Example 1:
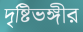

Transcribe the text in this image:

দৃষ্টিভঙ্গীর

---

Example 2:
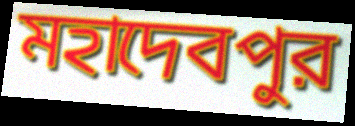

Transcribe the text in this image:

মহাদেবপুর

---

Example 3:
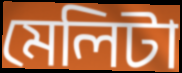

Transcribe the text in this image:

মেলিটা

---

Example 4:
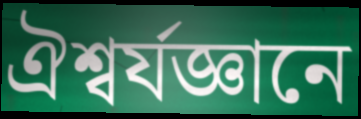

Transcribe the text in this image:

ঐশ্বর্যজ্ঞানে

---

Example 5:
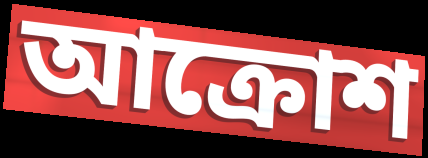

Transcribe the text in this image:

আক্রোশ